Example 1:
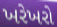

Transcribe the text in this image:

ખરેખરો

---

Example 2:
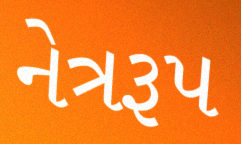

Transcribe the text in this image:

નેત્રરૂપ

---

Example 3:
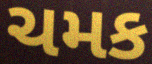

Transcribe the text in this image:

ચમક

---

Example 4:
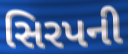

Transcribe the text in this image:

સિરપની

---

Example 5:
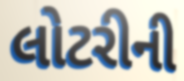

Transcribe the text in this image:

લોટરીની